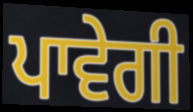
ਪਾਵੇਗੀ